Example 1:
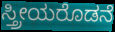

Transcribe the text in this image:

ಸ್ತ್ರೀಯರೊಡನೆ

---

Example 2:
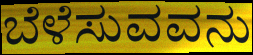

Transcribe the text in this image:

ಬೆಳೆಸುವವನು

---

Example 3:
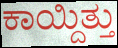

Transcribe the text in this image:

ಕಾಯ್ದಿತ್ತು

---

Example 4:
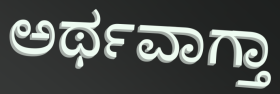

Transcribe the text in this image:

ಅರ್ಥವಾಗ್ತಾ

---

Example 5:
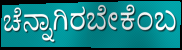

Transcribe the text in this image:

ಚೆನ್ನಾಗಿರಬೇಕೆಂಬ